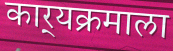
कार्यक्रमाला